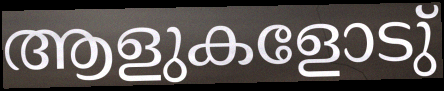
ആളുകളോടു്